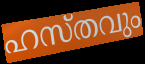
ഹസ്തവും